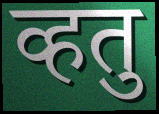
व्हतु